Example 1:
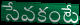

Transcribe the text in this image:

సేవకంటే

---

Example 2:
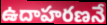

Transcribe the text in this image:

ఉదాహరణనే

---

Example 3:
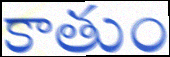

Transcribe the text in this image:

కాతుం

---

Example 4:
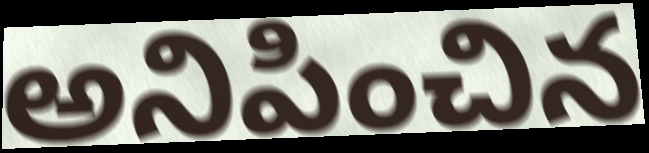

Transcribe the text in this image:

అనిపించిన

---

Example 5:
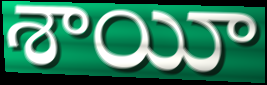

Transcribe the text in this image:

శాయీ